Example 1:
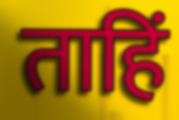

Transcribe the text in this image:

ताहिं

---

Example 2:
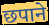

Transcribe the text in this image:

छपाने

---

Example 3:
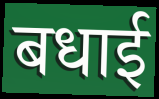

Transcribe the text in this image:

बधाई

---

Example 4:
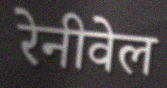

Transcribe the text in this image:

रेनीवेल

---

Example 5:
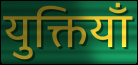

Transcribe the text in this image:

युक्तियाँ